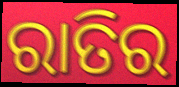
ରାତିର